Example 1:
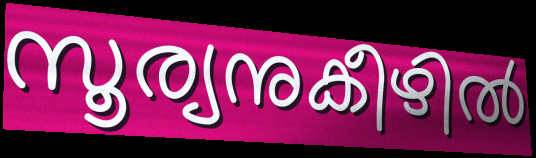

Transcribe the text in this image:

സൂര്യനുകീഴിൽ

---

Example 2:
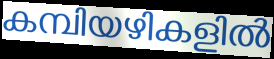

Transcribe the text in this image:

കമ്പിയഴികളിൽ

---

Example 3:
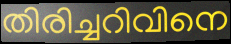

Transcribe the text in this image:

തിരിച്ചറിവിനെ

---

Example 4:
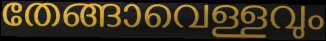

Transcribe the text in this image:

തേങ്ങാവെള്ളവും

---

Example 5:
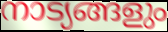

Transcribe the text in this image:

നാട്യങ്ങളും